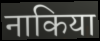
नाकिया